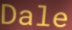
Dale